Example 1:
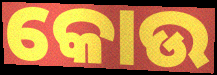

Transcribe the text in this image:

କୋଉ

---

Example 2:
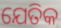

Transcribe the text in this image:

ଯେତିକ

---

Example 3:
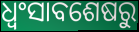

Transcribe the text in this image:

ଧ୍ୱଂସାବଶେଷରୁ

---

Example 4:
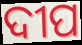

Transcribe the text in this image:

ଦୀପ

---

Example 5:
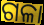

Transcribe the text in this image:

ଗଳା